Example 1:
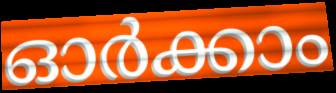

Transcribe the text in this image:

ഓർക്കാം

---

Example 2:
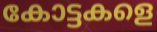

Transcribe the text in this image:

കോട്ടകളെ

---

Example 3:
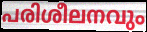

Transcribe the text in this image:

പരിശീലനവും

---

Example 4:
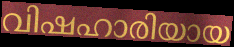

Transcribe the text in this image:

വിഷഹാരിയായ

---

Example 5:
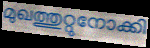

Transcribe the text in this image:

മുഖത്തുറ്റുനോക്കി